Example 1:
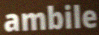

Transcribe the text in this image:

ambile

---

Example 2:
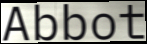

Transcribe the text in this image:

Abbot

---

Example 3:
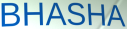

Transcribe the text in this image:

BHASHA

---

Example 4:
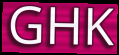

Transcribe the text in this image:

GHK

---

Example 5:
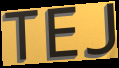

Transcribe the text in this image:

TEJ